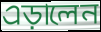
এড়ালেন